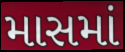
માસમાં